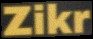
Zikr